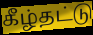
கீழ்தட்டு